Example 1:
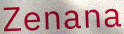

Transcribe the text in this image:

Zenana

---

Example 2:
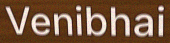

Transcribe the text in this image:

Venibhai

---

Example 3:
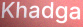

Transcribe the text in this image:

Khadga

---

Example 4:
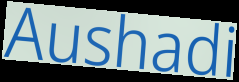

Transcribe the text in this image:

Aushadi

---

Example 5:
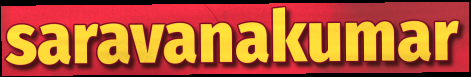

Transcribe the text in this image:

saravanakumar